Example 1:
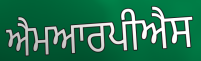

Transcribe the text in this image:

ਐਮਆਰਪੀਐਸ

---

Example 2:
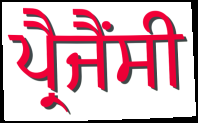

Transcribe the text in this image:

ਪ੍ਰੈਜੈਂਸੀ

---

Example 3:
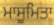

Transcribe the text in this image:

ਮਾਸੂਮਿਤਾ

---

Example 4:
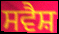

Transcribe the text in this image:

ਸਵੈਸ਼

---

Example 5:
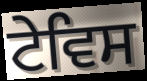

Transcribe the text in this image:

ਟੇਵਿਸ